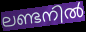
ലണ്ടനിൽ